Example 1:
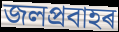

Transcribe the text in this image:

জলপ্ৰবাহৰ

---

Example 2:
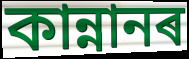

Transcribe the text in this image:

কান্নানৰ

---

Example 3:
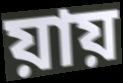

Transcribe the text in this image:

য়ায়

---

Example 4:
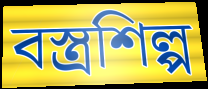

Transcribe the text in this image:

বস্ত্ৰশিল্প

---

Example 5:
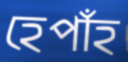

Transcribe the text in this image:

হেপাঁহ